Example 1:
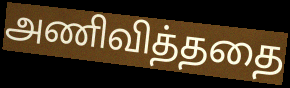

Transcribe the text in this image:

அணிவித்ததை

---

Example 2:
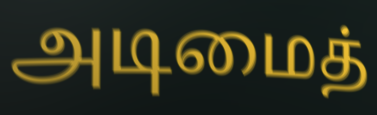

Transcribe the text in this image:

அடிமைத்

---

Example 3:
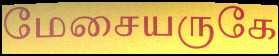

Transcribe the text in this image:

மேசையருகே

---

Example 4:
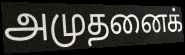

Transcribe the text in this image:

அமுதனைக்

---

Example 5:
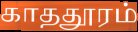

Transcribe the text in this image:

காததூரம்